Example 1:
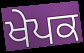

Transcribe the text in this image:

ਖੇਪਕ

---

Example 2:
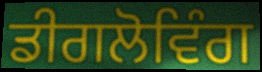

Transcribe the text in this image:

ਡੀਗਲੋਵਿੰਗ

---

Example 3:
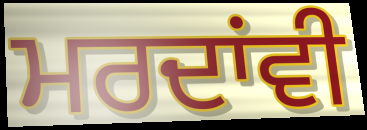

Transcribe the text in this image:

ਮਰਦਾਂਵੀ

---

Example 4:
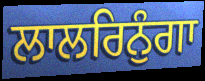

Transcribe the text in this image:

ਲਾਲਰਿਨੁੰਗਾ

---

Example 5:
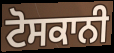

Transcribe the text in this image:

ਟੋਸਕਾਨੀ